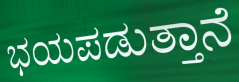
ಭಯಪಡುತ್ತಾನೆ